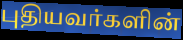
புதியவர்களின்